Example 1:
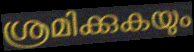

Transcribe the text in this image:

ശ്രമിക്കുകയും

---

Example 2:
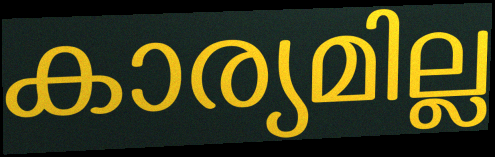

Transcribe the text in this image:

കാര്യമില്ല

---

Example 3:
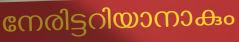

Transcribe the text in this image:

നേരിട്ടറിയാനാകും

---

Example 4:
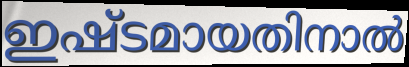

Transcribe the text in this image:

ഇഷ്ടമായതിനാൽ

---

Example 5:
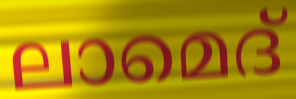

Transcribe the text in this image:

ലാമെദ്